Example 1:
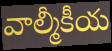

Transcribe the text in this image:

వాల్మీకీయ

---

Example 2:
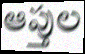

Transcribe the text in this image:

ఆప్తుల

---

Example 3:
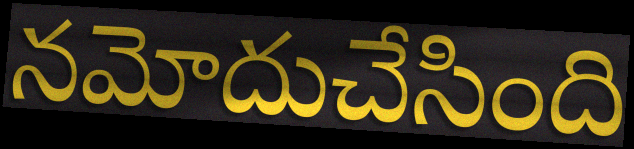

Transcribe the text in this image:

నమోదుచేసింది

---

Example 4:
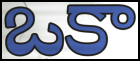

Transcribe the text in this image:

ఒకా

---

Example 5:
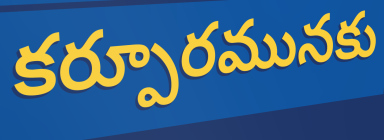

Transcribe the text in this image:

కర్పూరమునకు